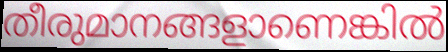
തീരുമാനങ്ങളാണെങ്കിൽ